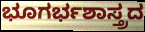
ಭೂಗರ್ಭಶಾಸ್ತ್ರದ